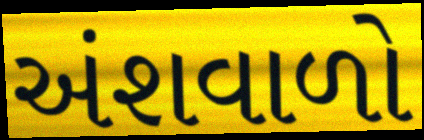
અંશવાળો